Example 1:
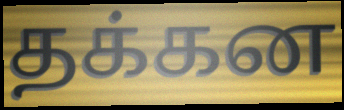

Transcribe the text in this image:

தக்கன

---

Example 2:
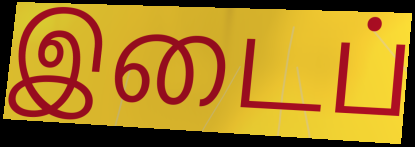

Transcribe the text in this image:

இடைப்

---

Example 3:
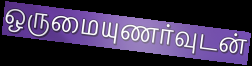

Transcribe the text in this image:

ஒருமையுணர்வுடன்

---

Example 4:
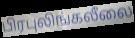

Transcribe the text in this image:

பிரபுலிங்கலீலை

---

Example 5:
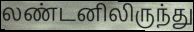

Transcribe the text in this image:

லண்டனிலிருந்து